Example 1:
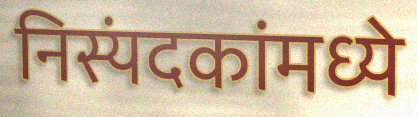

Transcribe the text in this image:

निस्यंदकांमध्ये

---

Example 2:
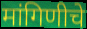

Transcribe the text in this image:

मांगिणीचे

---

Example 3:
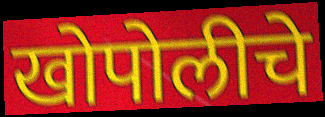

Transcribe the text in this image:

खोपोलीचे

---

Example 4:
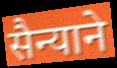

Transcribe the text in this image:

सैन्याने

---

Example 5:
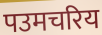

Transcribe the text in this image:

पउमचरिय